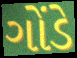
ગોંડે